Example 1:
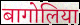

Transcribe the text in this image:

बागोलिया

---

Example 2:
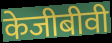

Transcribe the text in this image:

केजीबीवी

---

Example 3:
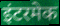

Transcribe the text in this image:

इंटरमेक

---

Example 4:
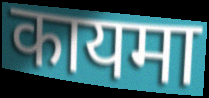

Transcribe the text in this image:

कायमा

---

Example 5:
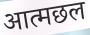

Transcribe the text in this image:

आत्मछल